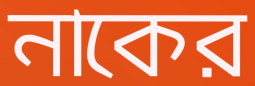
নাকের